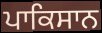
ਪਾਕਿਸਾਨ